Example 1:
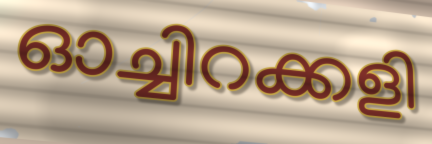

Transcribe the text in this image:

ഓച്ചിറക്കളി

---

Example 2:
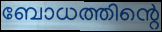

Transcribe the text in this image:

ബോധത്തിന്റെ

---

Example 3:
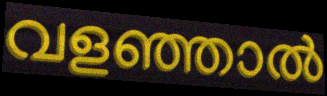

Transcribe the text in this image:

വളഞ്ഞാൽ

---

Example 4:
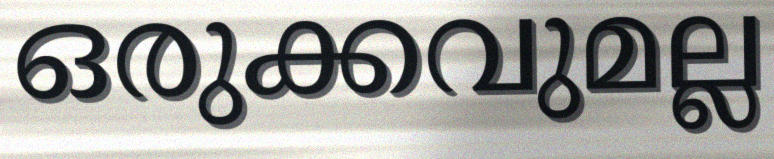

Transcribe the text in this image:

ഒരുക്കവുമല്ല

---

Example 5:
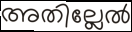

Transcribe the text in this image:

അതില്ലേൽ